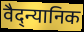
वैद्न्यानिक